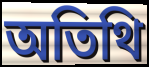
অতিথি